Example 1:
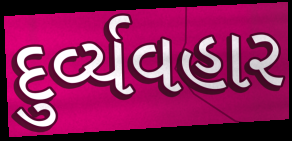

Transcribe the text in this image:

દુર્વ્યવહાર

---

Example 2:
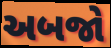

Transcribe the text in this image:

અબજો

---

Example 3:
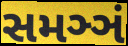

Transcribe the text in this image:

સમઞ્ઞં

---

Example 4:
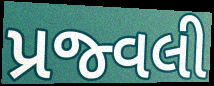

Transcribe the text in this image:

પ્રજ્વલી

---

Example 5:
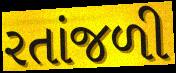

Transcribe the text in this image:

રતાંજળી